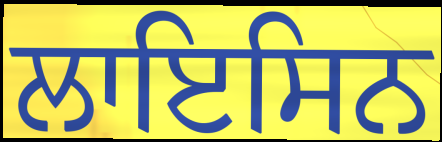
ਲਾਇਸਿਨ